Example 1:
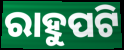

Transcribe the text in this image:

ରାହୁପଟି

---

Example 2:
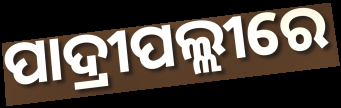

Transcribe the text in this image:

ପାଦ୍ରୀପଲ୍ଲୀରେ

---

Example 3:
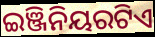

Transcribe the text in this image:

ଇଞ୍ଜିନିୟରଟିଏ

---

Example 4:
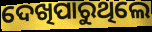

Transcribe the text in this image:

ଦେଖିପାରୁଥିଲେ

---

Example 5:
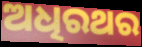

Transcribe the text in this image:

ଅଧିରଥର